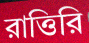
রাত্তিরি